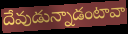
దేవుడున్నాడంటావా